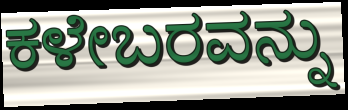
ಕಳೇಬರವನ್ನು